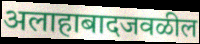
अलाहाबादजवळील